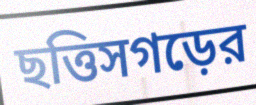
ছত্তিসগড়ের